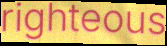
righteous